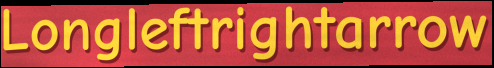
Longleftrightarrow